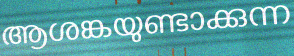
ആശങ്കയുണ്ടാക്കുന്ന